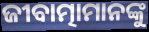
ଜୀବାତ୍ମାମାନଙ୍କୁ